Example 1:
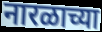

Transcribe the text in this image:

नारळाच्या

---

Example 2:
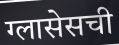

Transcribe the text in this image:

ग्लासेसची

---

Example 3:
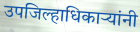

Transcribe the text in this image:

उपजिल्हाधिकाऱ्यांनी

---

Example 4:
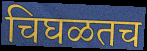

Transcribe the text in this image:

चिघळतच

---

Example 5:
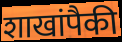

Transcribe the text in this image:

शाखांपैकी